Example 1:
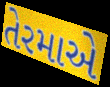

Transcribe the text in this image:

તેરમાએ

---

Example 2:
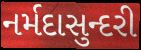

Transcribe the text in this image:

નર્મદાસુન્દરી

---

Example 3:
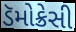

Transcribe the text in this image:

ડૅમોક્રેસી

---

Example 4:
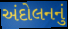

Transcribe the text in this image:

અંદોલનનું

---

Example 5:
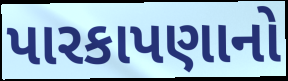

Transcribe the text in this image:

પારકાપણાનો